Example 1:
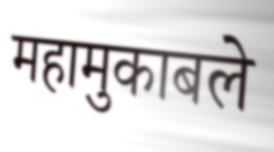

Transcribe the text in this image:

महामुकाबले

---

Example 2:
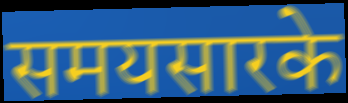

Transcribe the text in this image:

समयसारके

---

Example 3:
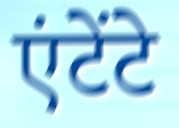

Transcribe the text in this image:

एंटेंटे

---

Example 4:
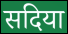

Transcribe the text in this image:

सदिया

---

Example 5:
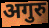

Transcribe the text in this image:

अगुरु